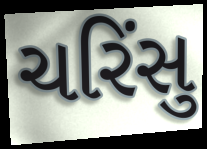
ચરિંસુ